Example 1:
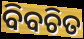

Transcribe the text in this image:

ବିବଚିତ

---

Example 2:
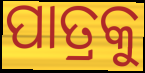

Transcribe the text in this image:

ପାତ୍ରକୁ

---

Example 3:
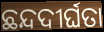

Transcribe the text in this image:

ଛନ୍ଦଦୀର୍ଘତା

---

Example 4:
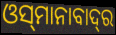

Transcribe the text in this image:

ଓସ୍‌ମାନାବାଦ୍‌ର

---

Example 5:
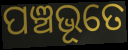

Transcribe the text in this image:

ପଞ୍ଚଭୂତେ